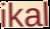
ikal